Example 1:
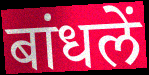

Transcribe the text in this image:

बांधलें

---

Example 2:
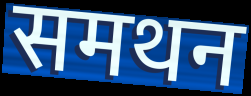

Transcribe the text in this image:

समथन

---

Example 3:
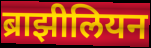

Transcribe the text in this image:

ब्राझीलियन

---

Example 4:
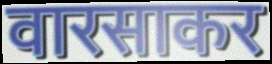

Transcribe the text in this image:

वारसाकर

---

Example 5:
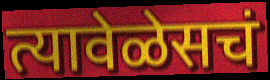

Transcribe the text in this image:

त्यावेळेसचं